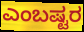
ಎಂಬಷ್ಟರ